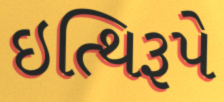
ઇત્થિરૂપે